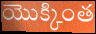
యొక్కింత